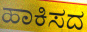
ಹಾಕಿಸದ